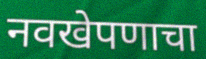
नवखेपणाचा